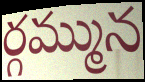
ర్గమ్మున